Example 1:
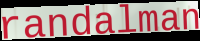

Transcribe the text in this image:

randalman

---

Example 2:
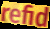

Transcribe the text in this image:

refid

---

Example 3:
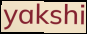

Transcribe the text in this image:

yakshi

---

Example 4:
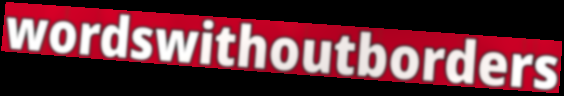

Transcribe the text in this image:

wordswithoutborders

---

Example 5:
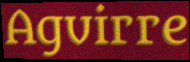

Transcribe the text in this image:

Aguirre